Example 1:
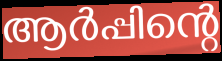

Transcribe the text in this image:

ആർപ്പിന്റെ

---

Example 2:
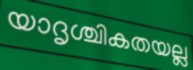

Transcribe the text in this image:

യാദൃശ്ചികതയല്ല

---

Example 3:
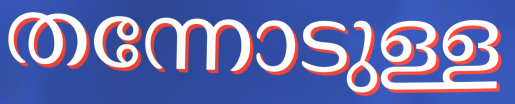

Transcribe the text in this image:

തന്നോടുള്ള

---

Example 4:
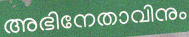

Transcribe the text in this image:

അഭിനേതാവിനും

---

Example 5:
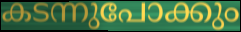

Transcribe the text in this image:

കടന്നുപോക്കും